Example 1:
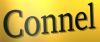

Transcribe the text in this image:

Connel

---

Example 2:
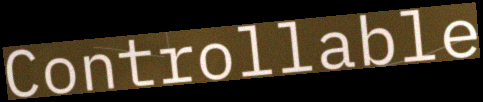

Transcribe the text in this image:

Controllable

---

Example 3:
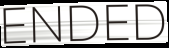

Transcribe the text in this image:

ENDED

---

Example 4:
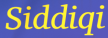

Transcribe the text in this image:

Siddiqi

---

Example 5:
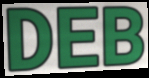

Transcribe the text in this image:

DEB